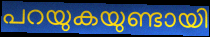
പറയുകയുണ്ടായി